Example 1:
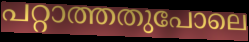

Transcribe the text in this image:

പറ്റാത്തതുപോലെ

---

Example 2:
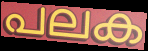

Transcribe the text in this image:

പലക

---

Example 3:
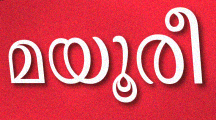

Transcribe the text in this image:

മയൂരീ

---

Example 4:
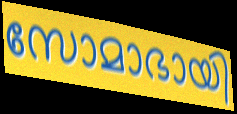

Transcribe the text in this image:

സോമാഭായി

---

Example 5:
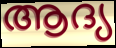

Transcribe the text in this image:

ആദ്യ